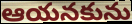
ఆయనకును